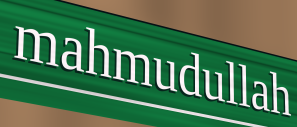
mahmudullah